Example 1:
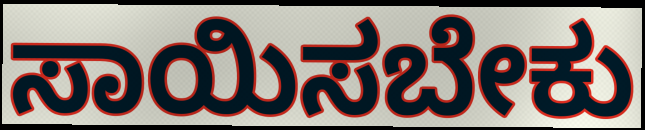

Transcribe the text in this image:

ಸಾಯಿಸಬೇಕು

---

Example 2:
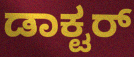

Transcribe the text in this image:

ಡಾಕ್ಟರ್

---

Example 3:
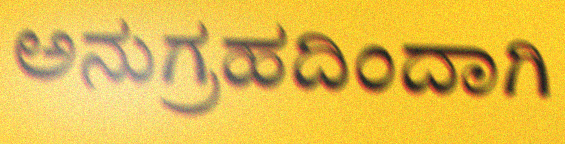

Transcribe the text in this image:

ಅನುಗ್ರಹದಿಂದಾಗಿ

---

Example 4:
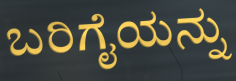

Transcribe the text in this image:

ಬರಿಗೈಯನ್ನು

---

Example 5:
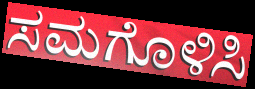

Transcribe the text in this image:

ಸಮಗೊಳಿಸಿ